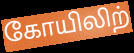
கோயிலிற்